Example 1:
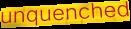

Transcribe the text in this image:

unquenched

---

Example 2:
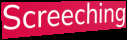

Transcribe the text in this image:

Screeching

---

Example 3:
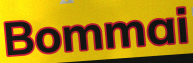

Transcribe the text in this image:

Bommai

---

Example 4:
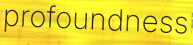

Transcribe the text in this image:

profoundness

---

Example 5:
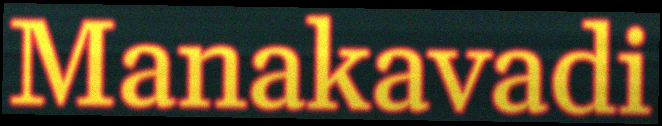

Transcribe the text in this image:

Manakavadi